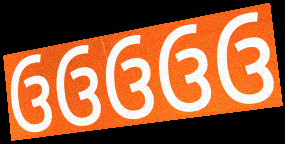
ઉઉઉઉઉ